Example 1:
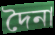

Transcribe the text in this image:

দৈনা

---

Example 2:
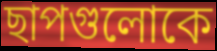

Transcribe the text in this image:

ছাপগুলোকে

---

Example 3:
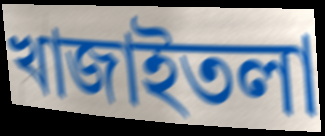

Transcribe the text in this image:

খাজাইতলা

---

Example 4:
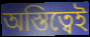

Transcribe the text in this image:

অস্তিত্বেই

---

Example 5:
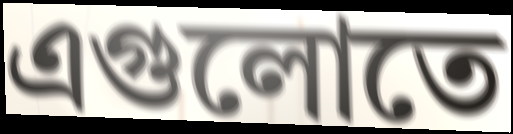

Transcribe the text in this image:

এগুলোতে